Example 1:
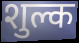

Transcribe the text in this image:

शुल्क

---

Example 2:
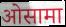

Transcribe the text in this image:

ओसामा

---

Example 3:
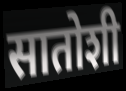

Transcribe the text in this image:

सातोशी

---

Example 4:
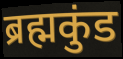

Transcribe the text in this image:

ब्रह्मकुंड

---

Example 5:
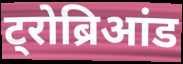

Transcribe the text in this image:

ट्रोब्रिआंड